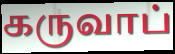
கருவாப்